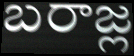
బరాజ్ల